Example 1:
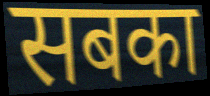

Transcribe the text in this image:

सबका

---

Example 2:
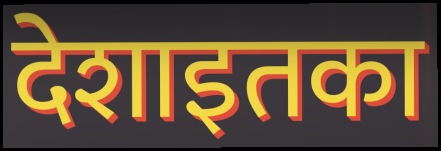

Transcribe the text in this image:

देशाइतका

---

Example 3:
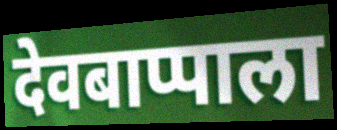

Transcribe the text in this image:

देवबाप्पाला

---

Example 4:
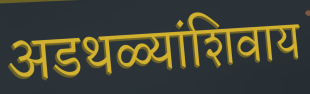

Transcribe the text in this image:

अडथळ्यांशिवाय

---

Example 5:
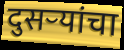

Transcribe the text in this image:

दुसऱ्यांचा